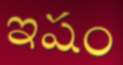
ఇషం